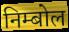
निम्बोल